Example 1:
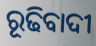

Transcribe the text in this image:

ରୂଢିବାଦୀ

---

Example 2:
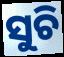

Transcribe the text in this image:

ସୁଚି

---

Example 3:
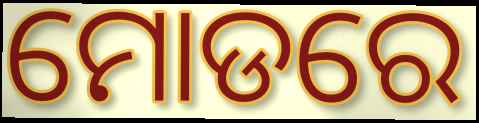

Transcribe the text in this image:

ମୋଡରେ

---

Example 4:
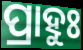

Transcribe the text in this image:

ପ୍ରାହୁଃ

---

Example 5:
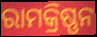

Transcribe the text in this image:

ରାମକ୍ରିଷ୍ଣନ